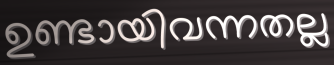
ഉണ്ടായിവന്നതല്ല